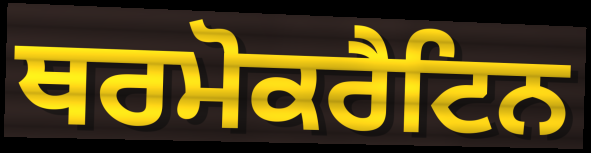
ਥਰਮੋਕਰੈਟਿਨ